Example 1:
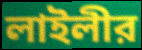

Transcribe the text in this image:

লাইলীর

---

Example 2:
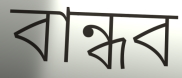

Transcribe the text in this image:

বান্ধব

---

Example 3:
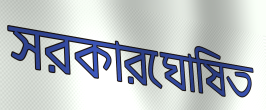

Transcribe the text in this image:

সরকারঘোষিত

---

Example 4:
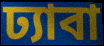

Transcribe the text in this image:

ঢ্যাবা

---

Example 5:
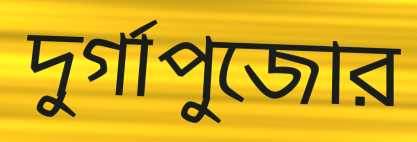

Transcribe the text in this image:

দুর্গাপুজোর